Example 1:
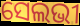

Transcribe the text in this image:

ସେଲଭୀ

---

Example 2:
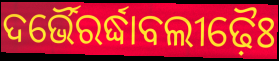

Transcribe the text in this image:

ଦର୍ଭୈରର୍ଦ୍ଧାବଲୀଢ଼ୈଃ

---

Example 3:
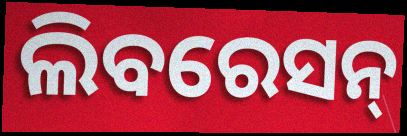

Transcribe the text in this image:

ଲିବରେସନ୍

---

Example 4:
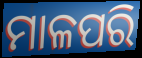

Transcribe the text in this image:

ମାଳପରି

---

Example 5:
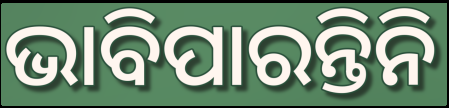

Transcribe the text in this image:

ଭାବିପାରନ୍ତିନି